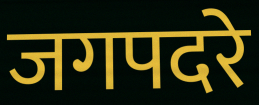
जगपदरे